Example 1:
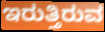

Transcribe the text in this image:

ಇರುತ್ತಿರುವ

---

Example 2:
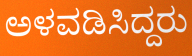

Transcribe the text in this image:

ಅಳವಡಿಸಿದ್ದರು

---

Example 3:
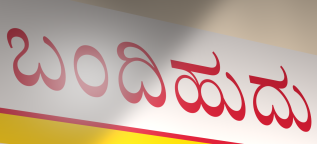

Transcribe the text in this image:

ಬಂದಿಹುದು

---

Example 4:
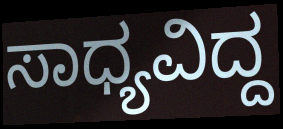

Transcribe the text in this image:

ಸಾಧ್ಯವಿದ್ದ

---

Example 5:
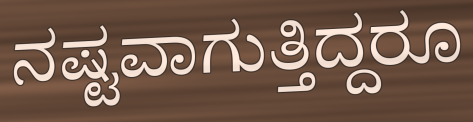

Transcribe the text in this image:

ನಷ್ಟವಾಗುತ್ತಿದ್ದರೂ